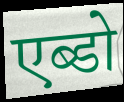
एब्डो